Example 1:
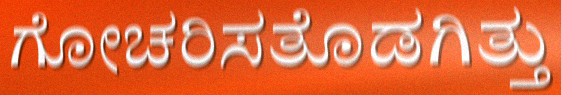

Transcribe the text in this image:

ಗೋಚರಿಸತೊಡಗಿತ್ತು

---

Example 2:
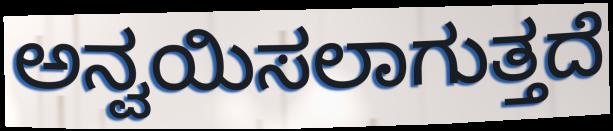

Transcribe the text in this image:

ಅನ್ವಯಿಸಲಾಗುತ್ತದೆ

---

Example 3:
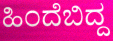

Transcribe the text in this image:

ಹಿಂದೆಬಿದ್ದ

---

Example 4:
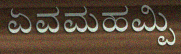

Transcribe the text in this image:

ಏವಮಹಮ್ಪಿ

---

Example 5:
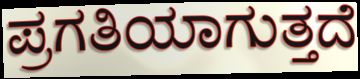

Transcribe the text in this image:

ಪ್ರಗತಿಯಾಗುತ್ತದೆ